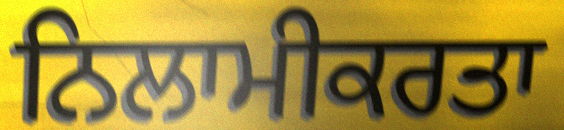
ਨਿਲਾਮੀਕਰਤਾ